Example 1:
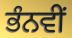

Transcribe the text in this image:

ਭੰਨਵੀਂ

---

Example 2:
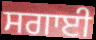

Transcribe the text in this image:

ਸਗਾਈ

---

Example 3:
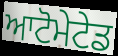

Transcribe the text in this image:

ਆਟੋਮੇਟੇਡ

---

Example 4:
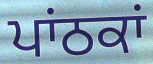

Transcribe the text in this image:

ਪਾਂਠਕਾਂ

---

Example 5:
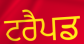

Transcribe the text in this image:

ਟਰੈਪਡ